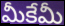
మీకేమీ